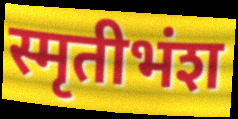
स्मृतीभंश